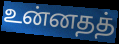
உன்னதத்